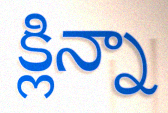
క్లిన్నా